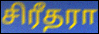
சிரீதரா